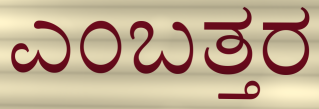
ಎಂಬತ್ತರ